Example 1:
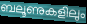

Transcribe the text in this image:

ബലൂണുകളിലും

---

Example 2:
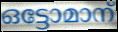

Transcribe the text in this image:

ഒട്ടോമാന്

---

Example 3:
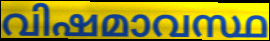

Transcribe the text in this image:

വിഷമാവസ്ഥ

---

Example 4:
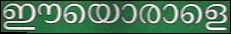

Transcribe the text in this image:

ഈയൊരാളെ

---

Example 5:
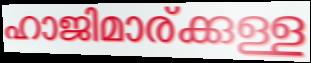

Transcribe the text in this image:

ഹാജിമാര്ക്കുള്ള